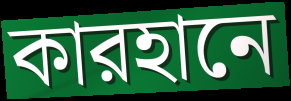
কারহানে